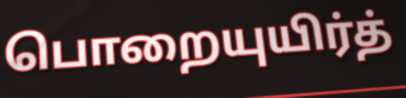
பொறையுயிர்த்